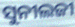
ସୁନୀଲଜୀ